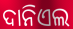
ଦାନିଏଲ